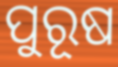
ପୁରୂଷ